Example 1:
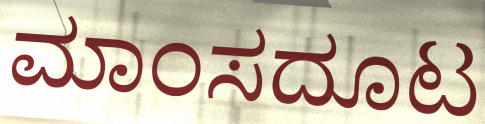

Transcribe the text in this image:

ಮಾಂಸದೂಟ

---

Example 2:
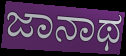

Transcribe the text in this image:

ಜಾನಾಥ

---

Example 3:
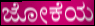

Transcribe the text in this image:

ಜೋಕೆಯ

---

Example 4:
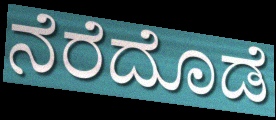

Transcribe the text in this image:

ನೆರೆದೊಡೆ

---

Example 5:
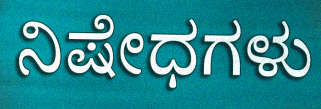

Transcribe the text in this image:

ನಿಷೇಧಗಳು